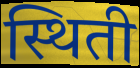
स्थिती